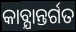
କାବ୍ଯାନ୍ତର୍ଗତ